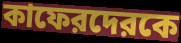
কাফেরদেরকে